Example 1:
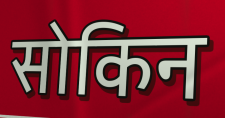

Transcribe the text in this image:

सोकिन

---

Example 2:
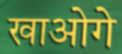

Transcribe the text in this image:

खाओगे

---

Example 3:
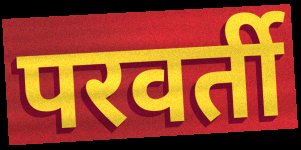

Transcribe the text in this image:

परवर्ती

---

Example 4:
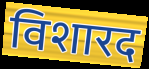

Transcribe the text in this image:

विशारद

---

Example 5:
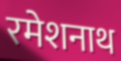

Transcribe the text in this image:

रमेशनाथ